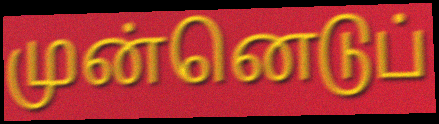
முன்னெடுப்